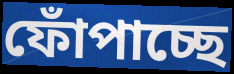
ফোঁপাচ্ছে